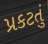
પ્રકટતું